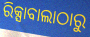
ରିକ୍ସାବାଲାଠାରୁ